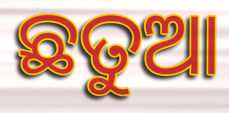
ଛତୁଆ